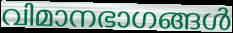
വിമാനഭാഗങ്ങൾ